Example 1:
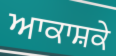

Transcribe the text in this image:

ਆਕਾਸ਼ਕੇ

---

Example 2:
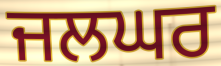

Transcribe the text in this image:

ਜਲਘਰ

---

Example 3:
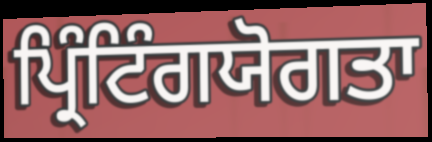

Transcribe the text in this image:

ਪ੍ਰਿੰਟਿੰਗਯੋਗਤਾ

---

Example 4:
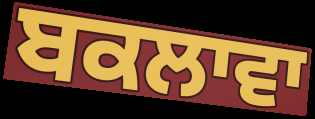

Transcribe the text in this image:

ਬਕਲਾਵਾ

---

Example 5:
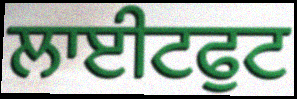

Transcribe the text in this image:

ਲਾਈਟਫੁਟ